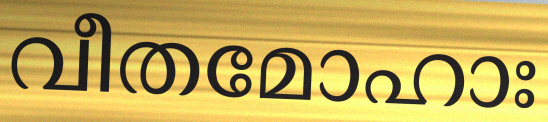
വീതമോഹാഃ